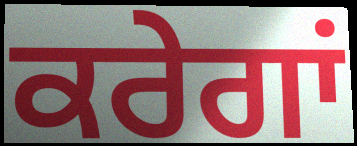
ਕਰੇਗਾਂ